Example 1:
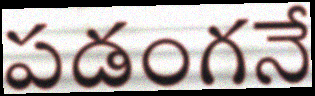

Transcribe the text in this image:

పడంగనే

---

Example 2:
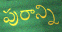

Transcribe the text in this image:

పురాన్ని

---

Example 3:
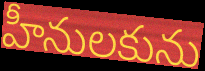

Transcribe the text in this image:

హీనులకును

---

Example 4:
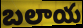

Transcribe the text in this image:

బలాయ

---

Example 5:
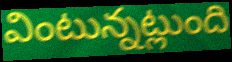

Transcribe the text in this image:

వింటున్నట్లుంది